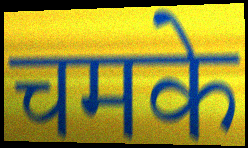
चमके